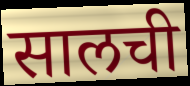
सालची